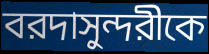
বরদাসুন্দরীকে